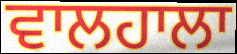
ਵਾਲਹਾਲਾ